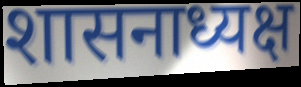
शासनाध्यक्ष